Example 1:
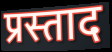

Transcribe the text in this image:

प्रस्ताद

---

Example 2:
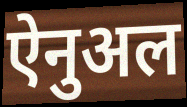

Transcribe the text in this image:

ऐनुअल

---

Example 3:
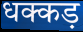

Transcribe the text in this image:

धक्कड़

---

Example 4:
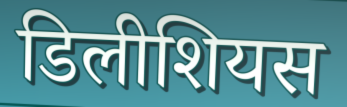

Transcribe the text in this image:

डिलीशियस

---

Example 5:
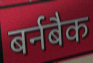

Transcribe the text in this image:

बर्नबैक